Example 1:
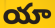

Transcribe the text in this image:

యా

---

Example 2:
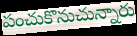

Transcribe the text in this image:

పంచుకొనుచున్నారు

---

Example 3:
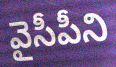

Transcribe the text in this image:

వైసీపీని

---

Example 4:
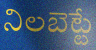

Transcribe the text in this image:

నిలబెట్టే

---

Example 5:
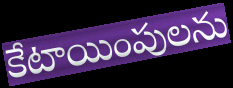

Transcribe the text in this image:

కేటాయింపులను